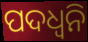
ପଦଧ୍ଵନି